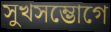
সুখসম্ভোগে